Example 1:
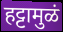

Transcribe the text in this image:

हट्टामुळं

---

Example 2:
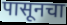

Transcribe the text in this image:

पासूनचा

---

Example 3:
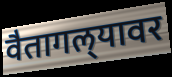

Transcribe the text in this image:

वैतागल्यावर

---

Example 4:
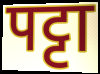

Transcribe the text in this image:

पट्टा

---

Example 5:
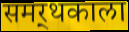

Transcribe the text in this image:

समर्थकाला